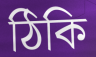
ঠিকি